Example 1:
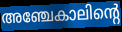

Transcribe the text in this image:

അഞ്ചേകാലിന്റെ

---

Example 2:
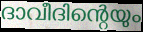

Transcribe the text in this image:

ദാവീദിന്റെയും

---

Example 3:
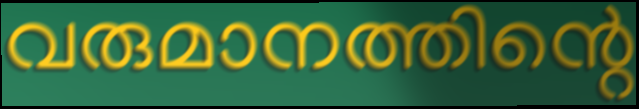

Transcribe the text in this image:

വരുമാനത്തിന്റെ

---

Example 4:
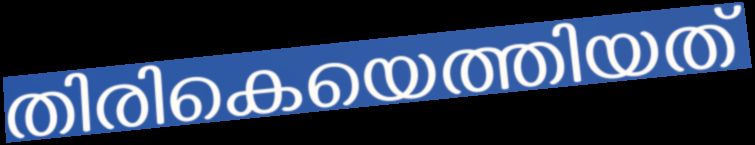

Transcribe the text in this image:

തിരികെയെത്തിയത്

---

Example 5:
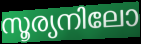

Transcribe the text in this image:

സൂര്യനിലോ